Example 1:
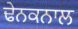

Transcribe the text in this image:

ਢੇਨਕਨਾਲ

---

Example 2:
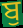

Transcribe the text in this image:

ਬੁ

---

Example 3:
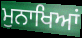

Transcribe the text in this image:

ਮੁਨਾਖਿਆਂ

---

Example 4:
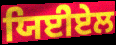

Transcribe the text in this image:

ਯਿਈੇਏਲ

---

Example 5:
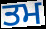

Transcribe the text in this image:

ਤਮ